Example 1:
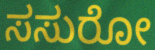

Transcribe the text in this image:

ಸಸುರೋ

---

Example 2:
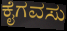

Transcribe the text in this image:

ಕೈಗವಸು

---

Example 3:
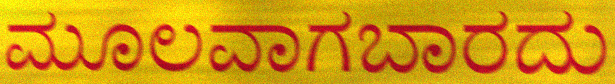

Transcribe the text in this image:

ಮೂಲವಾಗಬಾರದು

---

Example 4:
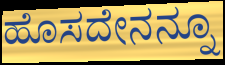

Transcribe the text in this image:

ಹೊಸದೇನನ್ನೂ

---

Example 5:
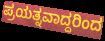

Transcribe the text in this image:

ಪ್ರಯತ್ನವಾದ್ದರಿಂದ